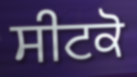
ਸੀਟਕੋ